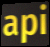
api